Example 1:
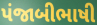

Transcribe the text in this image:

પંજાબીભાષી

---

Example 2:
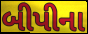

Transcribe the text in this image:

બીપીના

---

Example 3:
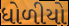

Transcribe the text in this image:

ધોળીયો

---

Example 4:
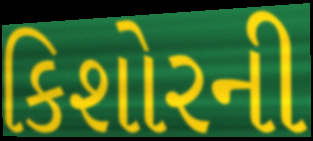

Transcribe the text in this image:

કિશોરની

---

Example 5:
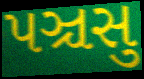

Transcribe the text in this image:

પઞ્ચસુ